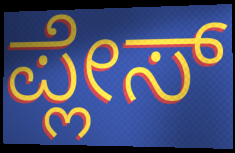
ಪ್ಲೇಸ್